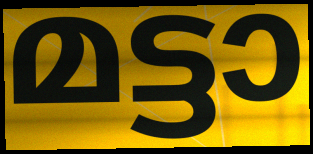
മട്ടാ